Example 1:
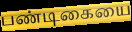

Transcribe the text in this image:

பண்டிகையை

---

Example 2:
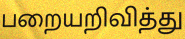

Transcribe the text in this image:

பறையறிவித்து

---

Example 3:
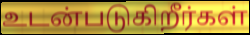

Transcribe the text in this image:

உடன்படுகிறீர்கள்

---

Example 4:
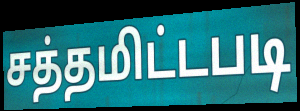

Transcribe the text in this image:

சத்தமிட்டபடி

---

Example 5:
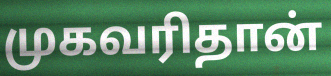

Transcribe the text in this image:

முகவரிதான்